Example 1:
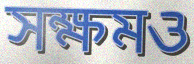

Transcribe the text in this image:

সক্ষমও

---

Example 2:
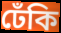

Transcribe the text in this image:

ঢেঁকি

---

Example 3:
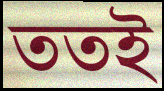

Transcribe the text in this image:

ততই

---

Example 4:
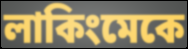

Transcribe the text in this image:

লাকিংমেকে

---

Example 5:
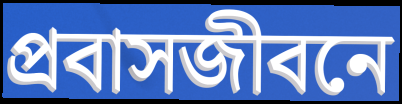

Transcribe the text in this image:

প্রবাসজীবনে